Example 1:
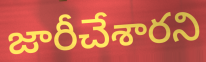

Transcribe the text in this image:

జారీచేశారని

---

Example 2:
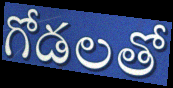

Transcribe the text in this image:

గోడలతో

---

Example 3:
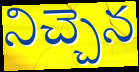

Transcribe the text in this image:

నిచ్చెన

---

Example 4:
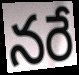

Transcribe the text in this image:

నరే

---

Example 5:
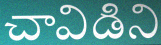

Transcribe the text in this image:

చావిడిని